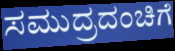
ಸಮುದ್ರದಂಚಿಗೆ